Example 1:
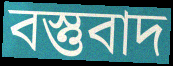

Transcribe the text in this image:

বস্তুবাদ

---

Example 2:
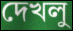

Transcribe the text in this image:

দেখলু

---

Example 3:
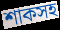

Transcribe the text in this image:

শাকসহ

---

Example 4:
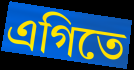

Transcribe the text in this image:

এগিতে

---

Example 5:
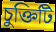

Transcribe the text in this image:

চুক্তিটি